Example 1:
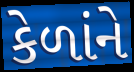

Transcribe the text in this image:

કેળાંને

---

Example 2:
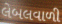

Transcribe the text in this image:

લેબલવાળી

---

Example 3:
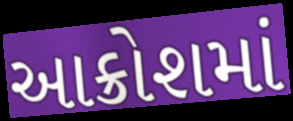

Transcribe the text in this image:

આક્રોશમાં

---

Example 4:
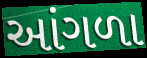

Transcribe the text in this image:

આંગળા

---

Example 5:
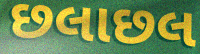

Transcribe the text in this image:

છલાછલ